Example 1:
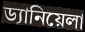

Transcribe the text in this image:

ড্যানিয়েলা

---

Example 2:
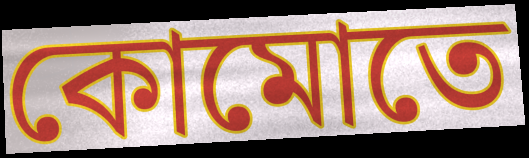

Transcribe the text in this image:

কোমোতে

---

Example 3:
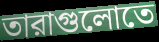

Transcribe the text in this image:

তারাগুলোতে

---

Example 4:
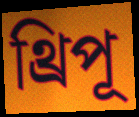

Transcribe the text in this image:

থ্রিপূ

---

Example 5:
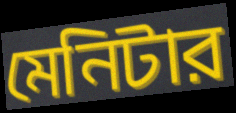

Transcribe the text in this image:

মেনিটার